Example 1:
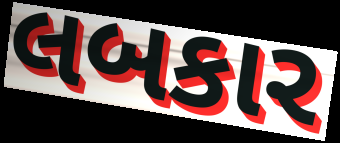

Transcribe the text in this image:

લબકાર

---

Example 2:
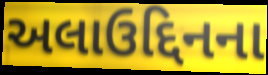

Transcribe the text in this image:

અલાઉદ્દિનના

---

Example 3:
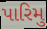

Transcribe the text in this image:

પારિમુ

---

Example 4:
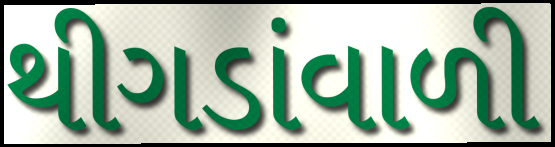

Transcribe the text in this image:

થીગડાંવાળી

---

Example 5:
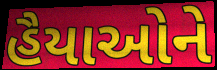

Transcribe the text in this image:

હૈયાઓને